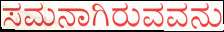
ಸಮನಾಗಿರುವವನು